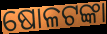
ଷୋଳଟଙ୍କା